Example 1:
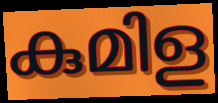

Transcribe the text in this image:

കുമിള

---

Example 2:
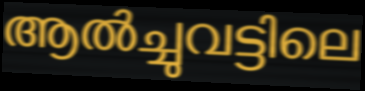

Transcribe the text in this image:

ആൽച്ചുവട്ടിലെ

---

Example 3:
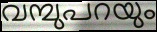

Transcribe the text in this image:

വമ്പുപറയും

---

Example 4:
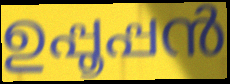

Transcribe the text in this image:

ഉപ്പൂപ്പൻ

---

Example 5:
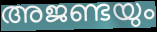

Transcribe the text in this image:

അജണ്ടയും